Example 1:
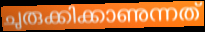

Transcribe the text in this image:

ചുരുക്കിക്കാണുന്നത്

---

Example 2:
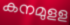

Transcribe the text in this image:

കനമുളള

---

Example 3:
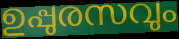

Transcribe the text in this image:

ഉപ്പുരസവും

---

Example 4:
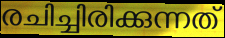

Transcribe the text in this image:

രചിച്ചിരിക്കുന്നത്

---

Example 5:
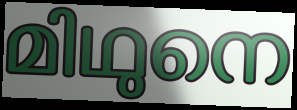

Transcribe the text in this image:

മിഥുനെ